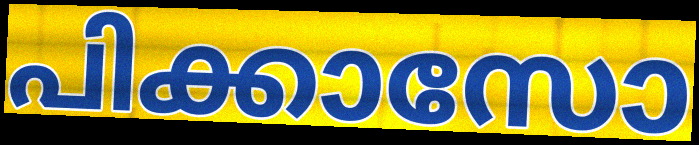
പിക്കാസോ